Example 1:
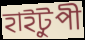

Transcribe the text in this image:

হাইটুপী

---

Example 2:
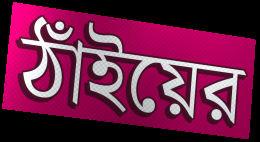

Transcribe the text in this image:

ঠাঁইয়ের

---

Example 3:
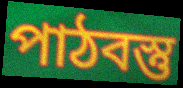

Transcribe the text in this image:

পাঠবস্তু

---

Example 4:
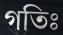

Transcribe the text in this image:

গতিঃ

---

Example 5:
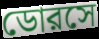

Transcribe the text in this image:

ডোরসে